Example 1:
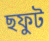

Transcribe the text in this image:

ছফুট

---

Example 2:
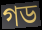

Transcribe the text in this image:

গড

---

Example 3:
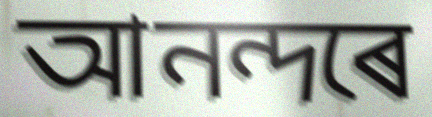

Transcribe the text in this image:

আনন্দৰে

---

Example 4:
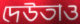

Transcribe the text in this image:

দেউতাও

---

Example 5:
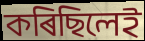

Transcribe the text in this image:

কৰিছিলেই